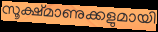
സൂക്ഷ്മാണുക്കളുമായി